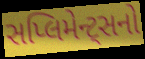
સપ્લિમેન્ટ્સનો